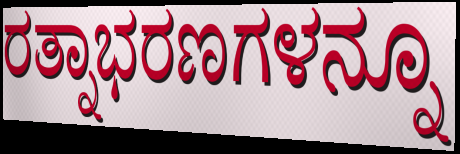
ರತ್ನಾಭರಣಗಳನ್ನೂ